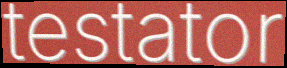
testator